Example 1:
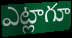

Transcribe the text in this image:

ఎట్లాగూ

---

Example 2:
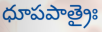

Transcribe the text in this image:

ధూపపాత్రైః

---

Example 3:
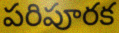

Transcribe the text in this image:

పరిపూరక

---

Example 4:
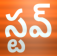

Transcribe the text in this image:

స్టవ్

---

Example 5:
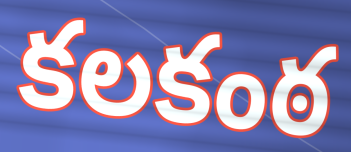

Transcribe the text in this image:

కలకంఠ